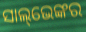
ସାଲ୍‌ଭେଙ୍କର